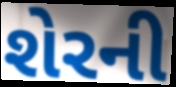
શેરની